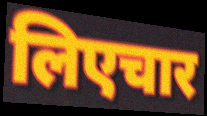
लिएचार